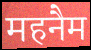
महनैम